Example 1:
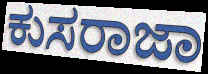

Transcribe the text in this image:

ಕುಸರಾಜಾ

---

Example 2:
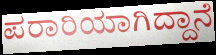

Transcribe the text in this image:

ಪರಾರಿಯಾಗಿದ್ದಾನೆ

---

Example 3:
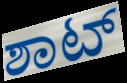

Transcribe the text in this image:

ಶಾಟ್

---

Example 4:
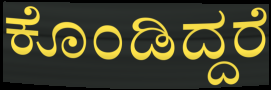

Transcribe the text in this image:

ಕೊಂಡಿದ್ದರೆ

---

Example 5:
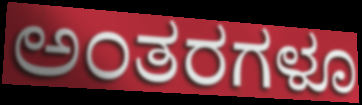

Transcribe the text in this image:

ಅಂತರಗಳೂ